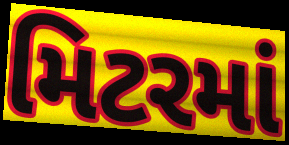
મિટરમાં